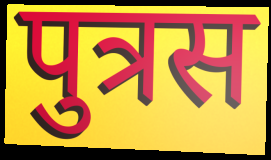
पुत्रस